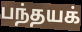
பந்தயக்